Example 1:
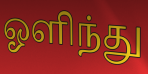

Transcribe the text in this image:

ஓளிந்து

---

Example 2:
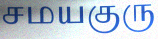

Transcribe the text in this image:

சமயகுரு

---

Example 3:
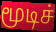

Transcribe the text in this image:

மூடிச்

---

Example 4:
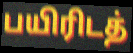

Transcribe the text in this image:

பயிரிடத்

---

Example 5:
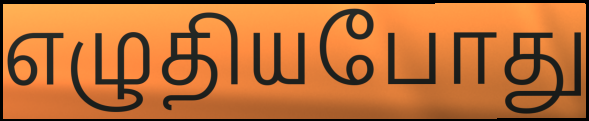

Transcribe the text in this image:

எழுதியபோது